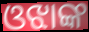
ଓଝାଙ୍କ